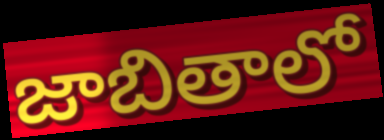
జాబితాలో